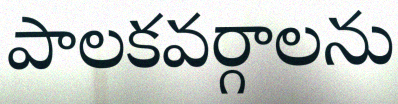
పాలకవర్గాలను